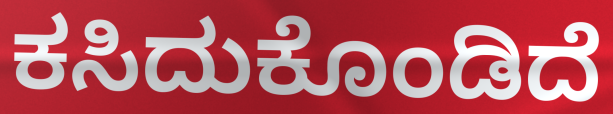
ಕಸಿದುಕೊಂಡಿದೆ